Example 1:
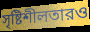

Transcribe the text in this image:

সৃষ্টিশীলতারও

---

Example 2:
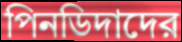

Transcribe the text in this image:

পিনডিদাদের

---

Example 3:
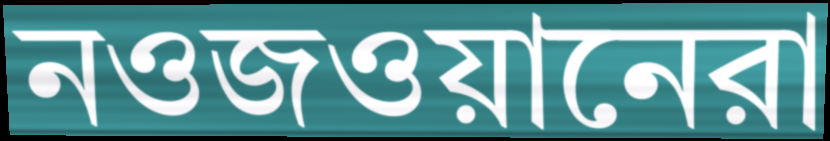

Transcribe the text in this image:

নওজওয়ানেরা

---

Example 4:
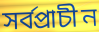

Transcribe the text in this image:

সর্বপ্রাচীন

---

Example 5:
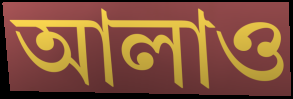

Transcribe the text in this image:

আলাও